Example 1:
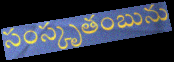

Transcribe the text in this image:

సంస్కృతంబును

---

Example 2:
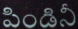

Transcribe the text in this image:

పిండినీ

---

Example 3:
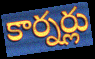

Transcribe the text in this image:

కార్నర్లు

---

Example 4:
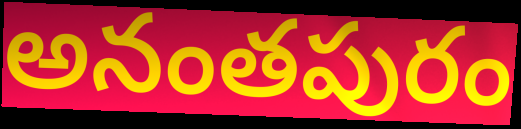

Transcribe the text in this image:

అనంతపురం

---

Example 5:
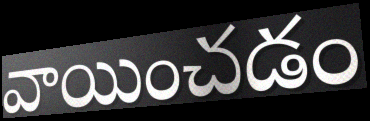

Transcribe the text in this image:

వాయించడం